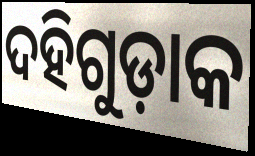
ଦହିଗୁଡ଼ାକ